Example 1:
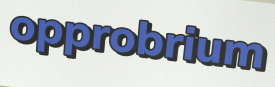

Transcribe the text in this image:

opprobrium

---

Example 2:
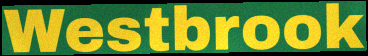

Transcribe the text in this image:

Westbrook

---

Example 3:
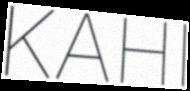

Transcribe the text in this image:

KAHI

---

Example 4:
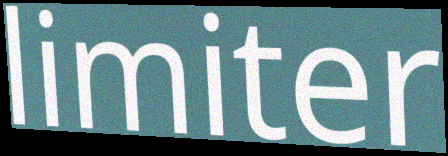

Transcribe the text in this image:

limiter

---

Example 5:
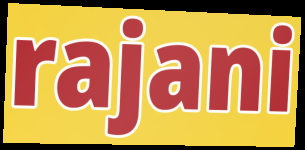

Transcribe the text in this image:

rajani